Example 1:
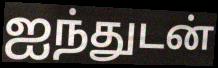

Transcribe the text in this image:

ஐந்துடன்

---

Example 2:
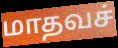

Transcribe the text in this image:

மாதவச்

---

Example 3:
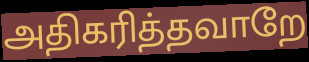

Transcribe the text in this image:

அதிகரித்தவாறே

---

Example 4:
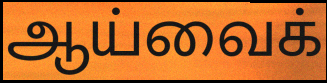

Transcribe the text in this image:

ஆய்வைக்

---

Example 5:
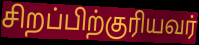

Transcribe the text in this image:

சிறப்பிற்குரியவர்